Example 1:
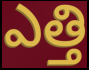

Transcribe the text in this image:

ఎత్తి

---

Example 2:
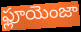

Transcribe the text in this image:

ఫ్లూయెంజా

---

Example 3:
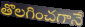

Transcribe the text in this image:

తొలగించగానే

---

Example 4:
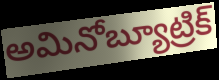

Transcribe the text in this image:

అమినోబ్యూట్రిక్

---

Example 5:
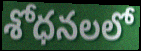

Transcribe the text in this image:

శోధనలలో